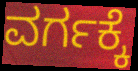
ವರ್ಗಕ್ಕೆ